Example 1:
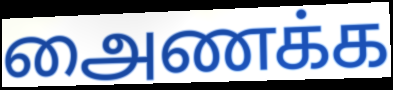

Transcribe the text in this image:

அைணக்க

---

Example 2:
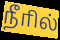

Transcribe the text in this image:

நீரில்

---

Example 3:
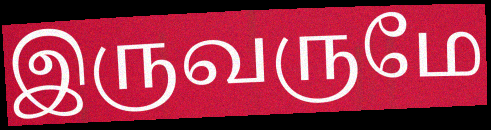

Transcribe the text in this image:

இருவருமே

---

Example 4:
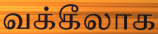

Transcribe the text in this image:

வக்கீலாக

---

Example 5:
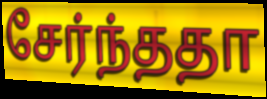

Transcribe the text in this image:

சேர்ந்ததா